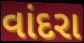
વાંદરા